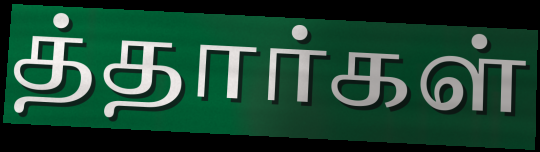
த்தார்கள்